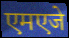
एमएजे